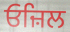
ਓਜ਼ਿਲ